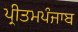
ਪ੍ਰੀਤਮਪੰਜਾਬ